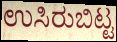
ಉಸಿರುಬಿಟ್ಟ